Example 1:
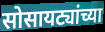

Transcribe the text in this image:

सोसायट्यांच्या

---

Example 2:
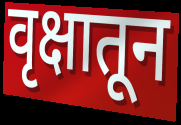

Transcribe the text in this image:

वृक्षातून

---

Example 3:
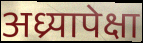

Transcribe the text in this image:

अध्र्यापेक्षा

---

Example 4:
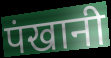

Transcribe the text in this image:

पंखानी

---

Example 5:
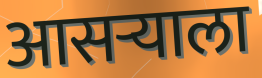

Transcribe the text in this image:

आसऱ्याला